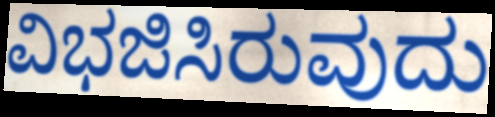
ವಿಭಜಿಸಿರುವುದು